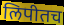
लिपीतच